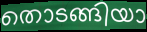
തൊടങ്ങിയാ